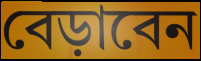
বেড়াবেন